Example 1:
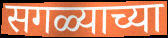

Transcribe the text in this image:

सगळ्याच्या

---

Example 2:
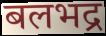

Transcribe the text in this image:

बलभद्र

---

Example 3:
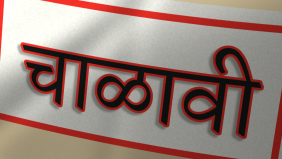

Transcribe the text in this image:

चाळावी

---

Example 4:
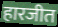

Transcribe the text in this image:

हारजीत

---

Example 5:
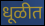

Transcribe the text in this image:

धूळीत